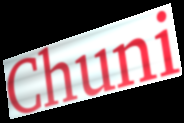
Chuni